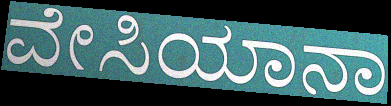
ವೇಸಿಯಾನಾ